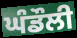
ਘੰਡੌਲੀ